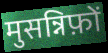
मुसन्निफ़ों